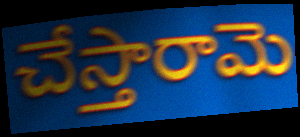
చేస్తారామె